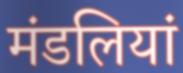
मंडलियां